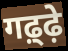
गढ़्ढ़े